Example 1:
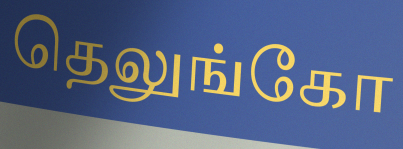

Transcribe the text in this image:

தெலுங்கோ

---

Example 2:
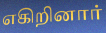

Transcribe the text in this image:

எகிறினார்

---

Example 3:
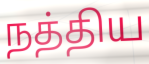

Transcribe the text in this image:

நத்திய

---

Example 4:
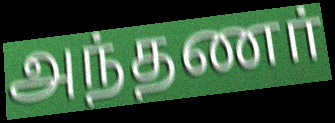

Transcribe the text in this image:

அந்தணர்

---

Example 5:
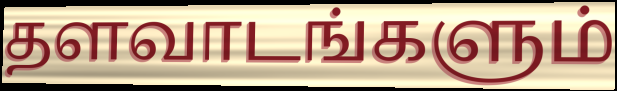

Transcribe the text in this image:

தளவாடங்களும்